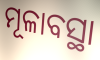
ମୂଳାବସ୍ଥା